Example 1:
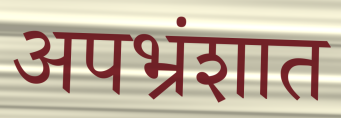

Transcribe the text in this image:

अपभ्रंशात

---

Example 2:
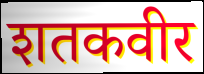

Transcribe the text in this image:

शतकवीर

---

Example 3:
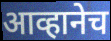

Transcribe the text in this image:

आव्हानेच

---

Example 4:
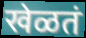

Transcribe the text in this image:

खेळतं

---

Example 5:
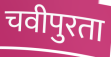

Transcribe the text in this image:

चवीपुरता